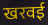
खरवई